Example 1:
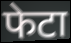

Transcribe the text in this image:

फेटा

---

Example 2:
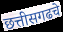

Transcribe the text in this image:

छत्तीसगढचे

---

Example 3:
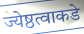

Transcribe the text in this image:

ज्येष्ठत्वाकडे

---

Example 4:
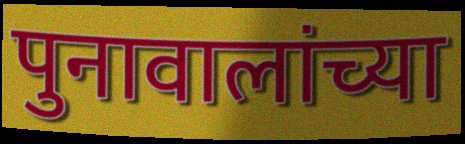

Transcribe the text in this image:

पुनावालांच्या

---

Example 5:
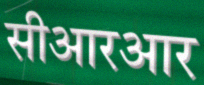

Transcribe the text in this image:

सीआरआर